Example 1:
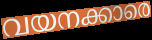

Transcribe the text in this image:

വയനക്കാരെ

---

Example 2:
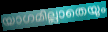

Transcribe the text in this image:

യാഗമില്ലാതെയും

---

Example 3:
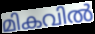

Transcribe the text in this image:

മികവിൽ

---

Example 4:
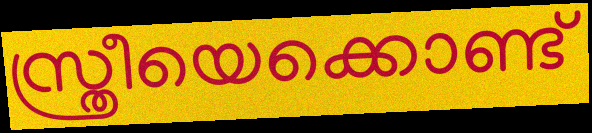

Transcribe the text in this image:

സ്ത്രീയെക്കൊണ്ട്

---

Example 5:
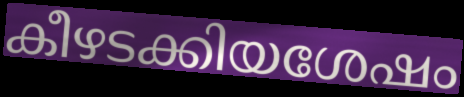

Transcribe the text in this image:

കീഴടക്കിയശേഷം